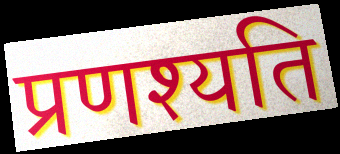
प्रणश्यति